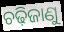
ଚଢ଼ିଜାଣୁ